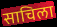
साचिला